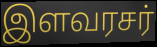
இளவரசர்